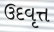
ઉદવૃત્ત